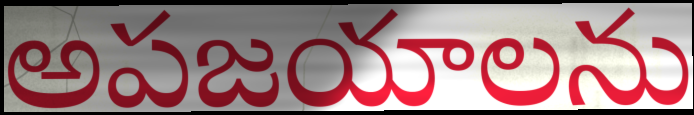
అపజయాలను